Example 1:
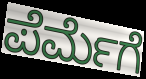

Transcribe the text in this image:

ಪೆರ್ಮೆಗೆ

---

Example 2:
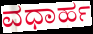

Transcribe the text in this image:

ವಧಾರ್ಹ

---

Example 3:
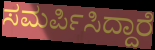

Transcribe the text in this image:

ಸಮರ್ಪಿಸಿದ್ದಾರೆ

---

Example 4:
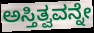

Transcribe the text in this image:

ಅಸ್ತಿತ್ವವನ್ನೇ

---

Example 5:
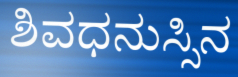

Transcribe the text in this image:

ಶಿವಧನುಸ್ಸಿನ